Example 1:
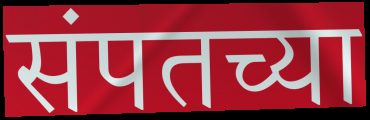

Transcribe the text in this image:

संपतच्या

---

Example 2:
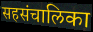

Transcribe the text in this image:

सहसंचालिका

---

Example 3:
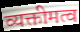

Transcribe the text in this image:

व्यक्तीमत्व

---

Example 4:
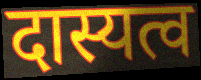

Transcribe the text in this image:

दास्यत्व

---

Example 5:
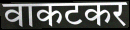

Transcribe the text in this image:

वाकटकर